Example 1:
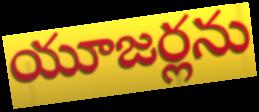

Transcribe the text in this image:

యూజర్లను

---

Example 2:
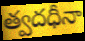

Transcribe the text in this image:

త్వదధీనా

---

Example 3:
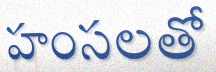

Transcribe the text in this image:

హంసలతో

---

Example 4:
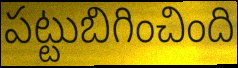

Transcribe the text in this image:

పట్టుబిగించింది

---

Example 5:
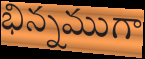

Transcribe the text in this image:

భిన్నముగా